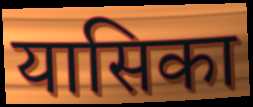
यासिका